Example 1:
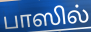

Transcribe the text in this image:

பாஸில்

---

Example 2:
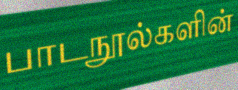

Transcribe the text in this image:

பாடநூல்களின்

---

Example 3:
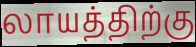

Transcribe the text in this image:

லாயத்திற்கு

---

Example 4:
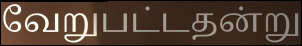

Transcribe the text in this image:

வேறுபட்டதன்று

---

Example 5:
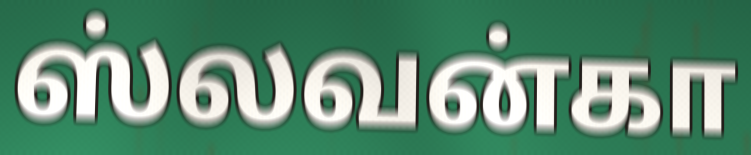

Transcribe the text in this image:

ஸ்லவன்கா